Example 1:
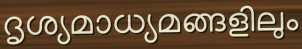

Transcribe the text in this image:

ദൃശ്യമാധ്യമങ്ങളിലും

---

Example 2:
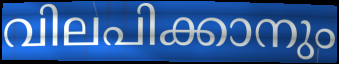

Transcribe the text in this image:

വിലപിക്കാനും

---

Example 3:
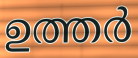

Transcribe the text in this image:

ഉത്തർ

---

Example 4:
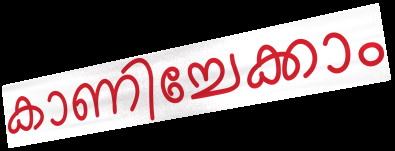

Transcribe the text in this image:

കാണിച്ചേക്കാം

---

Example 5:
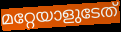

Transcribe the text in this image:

മറ്റേയാളുടേത്